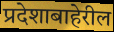
प्रदेशाबाहेरील